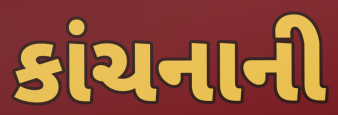
કાંચનાની